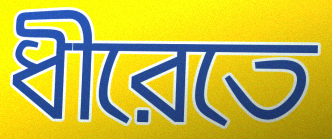
ধীরেতে